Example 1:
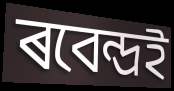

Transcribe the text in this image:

ৰবেন্দ্ৰই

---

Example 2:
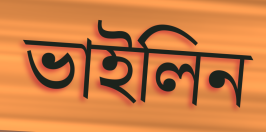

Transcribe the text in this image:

ভাইলিন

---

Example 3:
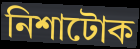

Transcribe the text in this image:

নিশাটোক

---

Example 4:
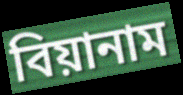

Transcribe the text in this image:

বিয়ানাম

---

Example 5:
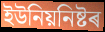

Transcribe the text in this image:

ইউনিয়নিষ্টৰ